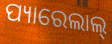
ପ୍ୟାରେଲାଲ୍